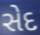
સેદ